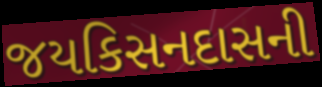
જયકિસનદાસની